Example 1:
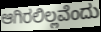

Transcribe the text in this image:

ಆಗಿರಲಿಲ್ಲವೆಂದು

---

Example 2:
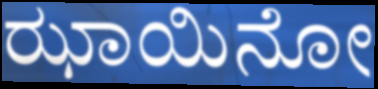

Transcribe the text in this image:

ಝಾಯಿನೋ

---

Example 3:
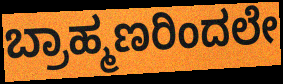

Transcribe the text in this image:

ಬ್ರಾಹ್ಮಣರಿಂದಲೇ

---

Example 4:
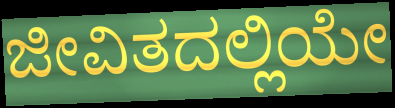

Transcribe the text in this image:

ಜೀವಿತದಲ್ಲಿಯೇ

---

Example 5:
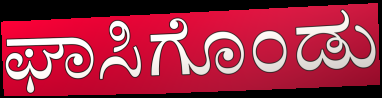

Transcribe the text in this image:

ಘಾಸಿಗೊಂಡು